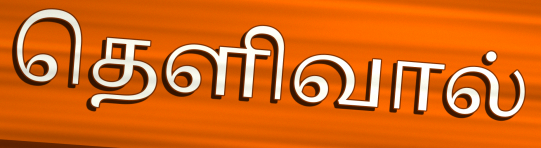
தெளிவால்